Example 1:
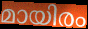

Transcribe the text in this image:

മായിരം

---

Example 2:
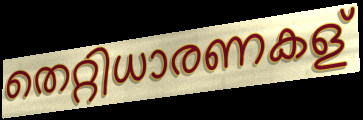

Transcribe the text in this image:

തെറ്റിധാരണകള്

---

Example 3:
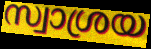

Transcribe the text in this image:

സ്വാശ്രയ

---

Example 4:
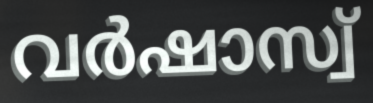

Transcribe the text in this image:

വർഷാസ്വ്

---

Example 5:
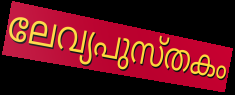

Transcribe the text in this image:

ലേവ്യപുസ്തകം